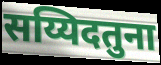
सय्यिदतुना